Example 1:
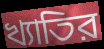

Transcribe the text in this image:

খ্যাতির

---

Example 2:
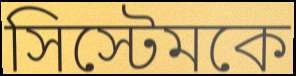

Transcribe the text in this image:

সিস্টেমকে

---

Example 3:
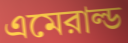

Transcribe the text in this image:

এমেরাল্ড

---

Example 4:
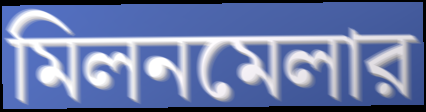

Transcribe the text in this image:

মিলনমেলার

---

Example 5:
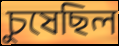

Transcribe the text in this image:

চুষেছিল